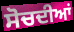
ਸੋਚਦੀਆਂ